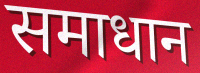
समाधान